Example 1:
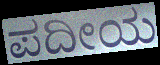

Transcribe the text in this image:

ಪದೀಯ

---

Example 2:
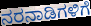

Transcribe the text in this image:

ನರನಾಡಿಗಳಿಗೆ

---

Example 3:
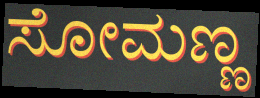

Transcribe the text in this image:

ಸೋಮಣ್ಣ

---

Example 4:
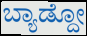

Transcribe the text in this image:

ಬ್ಯಾಡ್ದೋ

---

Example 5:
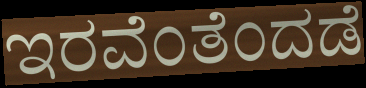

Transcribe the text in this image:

ಇರವೆಂತೆಂದಡೆ